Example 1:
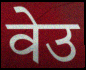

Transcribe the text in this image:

वेउ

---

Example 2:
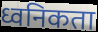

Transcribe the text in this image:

ध्वनिकता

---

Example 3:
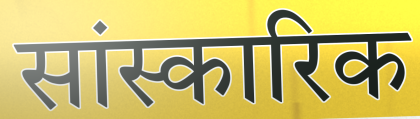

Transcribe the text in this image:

सांस्कारिक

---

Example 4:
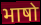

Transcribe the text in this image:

भाषो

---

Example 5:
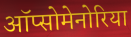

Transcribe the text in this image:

ऑप्सोमेनोरिया